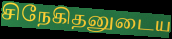
சிநேகிதனுடைய